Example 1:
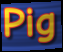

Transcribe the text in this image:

Pig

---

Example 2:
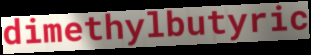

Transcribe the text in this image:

dimethylbutyric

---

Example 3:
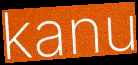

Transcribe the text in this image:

kanu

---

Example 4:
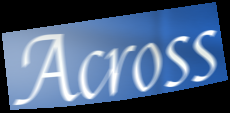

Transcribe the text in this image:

Across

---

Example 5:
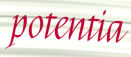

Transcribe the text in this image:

potentia